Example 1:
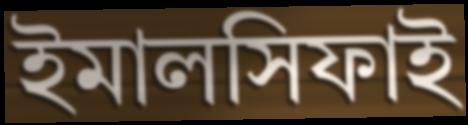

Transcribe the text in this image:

ইমালসিফাই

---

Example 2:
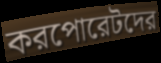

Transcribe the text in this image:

করপোরেটদের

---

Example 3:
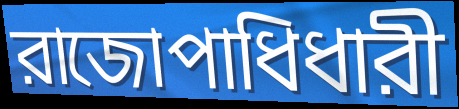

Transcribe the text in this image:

রাজোপাধিধারী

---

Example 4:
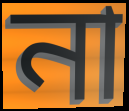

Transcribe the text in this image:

না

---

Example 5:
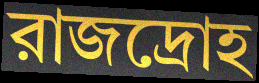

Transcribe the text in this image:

রাজদ্রোহ